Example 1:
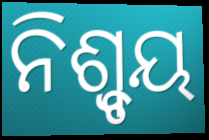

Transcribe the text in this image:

ନିଶ୍ୱ୍ଚୟ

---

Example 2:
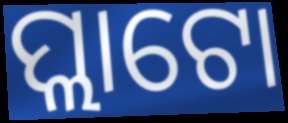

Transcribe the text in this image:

ପ୍ଲାଟୋ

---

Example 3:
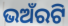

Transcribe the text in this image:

ଭଅଁରଟି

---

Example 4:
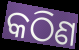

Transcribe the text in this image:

କଠିଣ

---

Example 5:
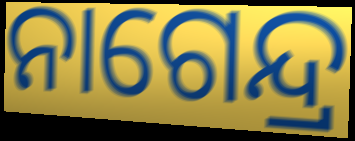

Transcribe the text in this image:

ନାଗେନ୍ଦ୍ର